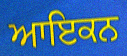
ਆਇਕਨ